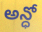
అన్ధో